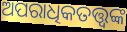
ଅପରାଧିକତତ୍ତ୍ୱଙ୍କ